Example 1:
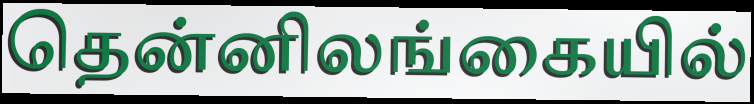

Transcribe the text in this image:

தென்னிலங்கையில்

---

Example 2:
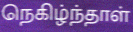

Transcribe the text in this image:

நெகிழ்ந்தாள்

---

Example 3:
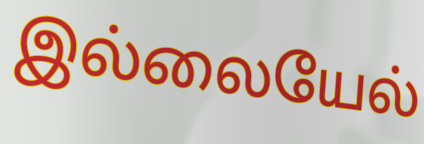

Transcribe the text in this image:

இல்லையேல்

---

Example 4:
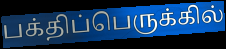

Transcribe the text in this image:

பக்திப்பெருக்கில்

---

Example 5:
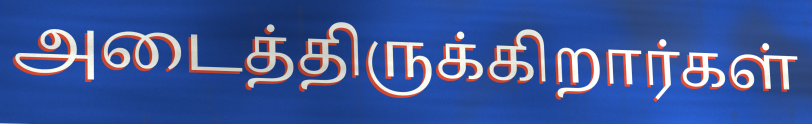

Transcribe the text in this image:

அடைத்திருக்கிறார்கள்